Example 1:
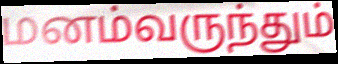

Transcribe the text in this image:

மனம்வருந்தும்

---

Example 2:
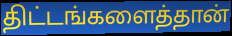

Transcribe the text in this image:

திட்டங்களைத்தான்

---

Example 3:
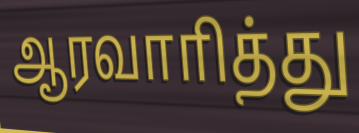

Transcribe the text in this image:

ஆரவாரித்து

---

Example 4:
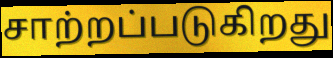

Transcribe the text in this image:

சாற்றப்படுகிறது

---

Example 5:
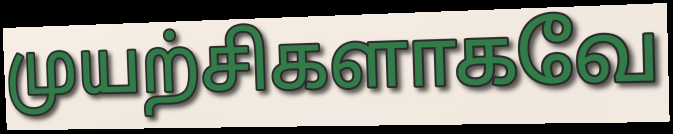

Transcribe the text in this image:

முயற்சிகளாகவே